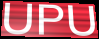
UPU